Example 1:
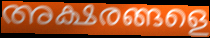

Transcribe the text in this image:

അക്ഷരങ്ങളെ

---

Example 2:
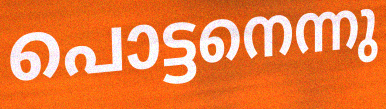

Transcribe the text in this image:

പൊട്ടനെന്നു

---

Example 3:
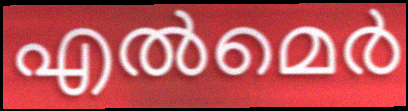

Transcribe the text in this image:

എൽമെർ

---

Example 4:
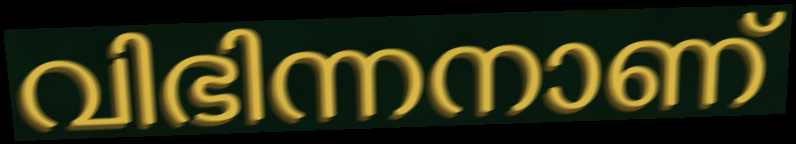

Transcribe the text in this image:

വിഭിന്നനാണ്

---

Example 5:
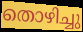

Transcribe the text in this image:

തൊഴിച്ചു